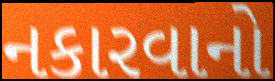
નકારવાનો